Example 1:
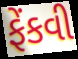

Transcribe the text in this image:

ફેંકવી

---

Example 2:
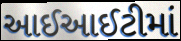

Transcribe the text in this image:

આઈઆઈટીમાં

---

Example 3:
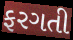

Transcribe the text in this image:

ફરગતી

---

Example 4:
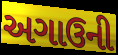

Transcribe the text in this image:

અગાઉની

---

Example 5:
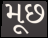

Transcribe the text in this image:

મૂછ